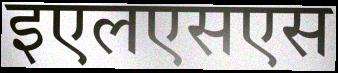
इएलएसएस